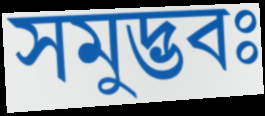
সমুদ্ভবঃ